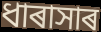
ধাৰাসাৰ